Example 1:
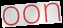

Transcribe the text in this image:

oon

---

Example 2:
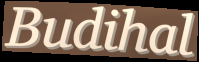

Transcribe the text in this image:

Budihal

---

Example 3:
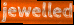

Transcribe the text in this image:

jewelled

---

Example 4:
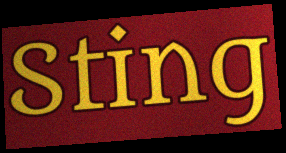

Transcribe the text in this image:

Sting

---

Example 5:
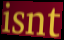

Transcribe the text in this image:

isnt